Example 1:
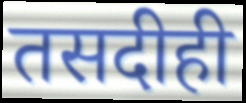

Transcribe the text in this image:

तसदीही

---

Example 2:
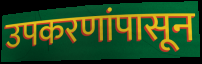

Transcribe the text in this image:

उपकरणांपासून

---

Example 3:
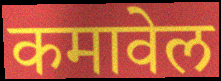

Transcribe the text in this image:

कमावेल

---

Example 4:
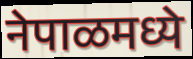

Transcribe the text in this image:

नेपाळमध्ये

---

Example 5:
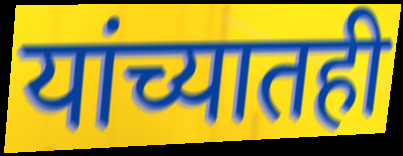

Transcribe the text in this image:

यांच्यातही